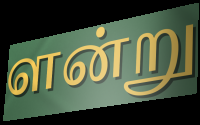
ளன்று